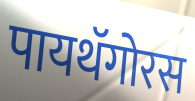
पायथॅगोरस